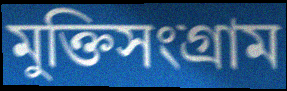
মুক্তিসংগ্রাম